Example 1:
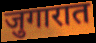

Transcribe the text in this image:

जुगारात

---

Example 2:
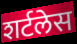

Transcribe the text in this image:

शर्टलेस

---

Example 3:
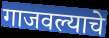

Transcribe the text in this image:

गाजवल्याचे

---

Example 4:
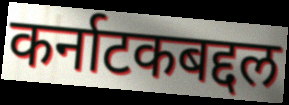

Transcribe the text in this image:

कर्नाटकबद्दल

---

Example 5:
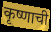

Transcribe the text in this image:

कृष्णाची